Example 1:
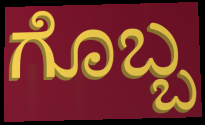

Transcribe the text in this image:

ಗೊಬ್ಬ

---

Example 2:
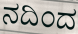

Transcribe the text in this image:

ನದಿಂದ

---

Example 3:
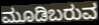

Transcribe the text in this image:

ಮೂಡಿಬರುವ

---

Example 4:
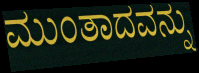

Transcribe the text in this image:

ಮುಂತಾದವನ್ನು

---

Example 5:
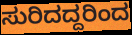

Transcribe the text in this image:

ಸುರಿದದ್ದರಿಂದ